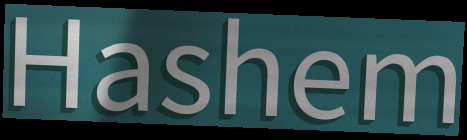
Hashem